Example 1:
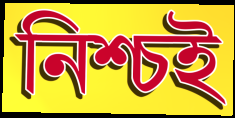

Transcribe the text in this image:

নিশ্চই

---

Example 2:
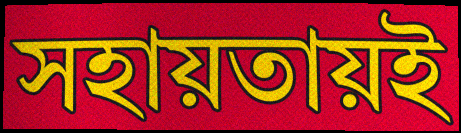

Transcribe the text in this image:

সহায়তায়ই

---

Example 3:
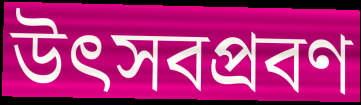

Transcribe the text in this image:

উৎসবপ্রবণ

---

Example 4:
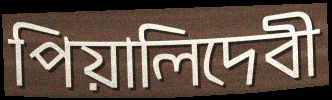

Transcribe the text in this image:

পিয়ালিদেবী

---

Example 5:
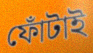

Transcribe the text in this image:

ফোঁটাই